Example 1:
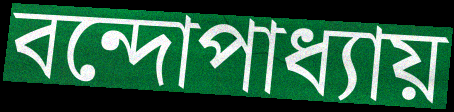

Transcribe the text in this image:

বন্দোপাধ্যায়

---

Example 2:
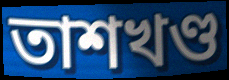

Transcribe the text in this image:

তাশখণ্ড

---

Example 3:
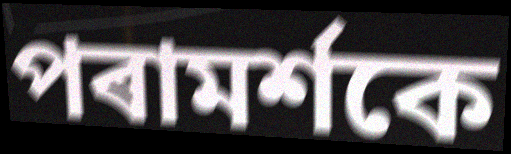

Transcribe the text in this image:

পৰামৰ্শকে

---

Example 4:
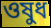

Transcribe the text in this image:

ওষুধ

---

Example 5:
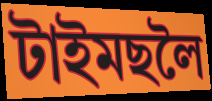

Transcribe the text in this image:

টাইমছলৈ